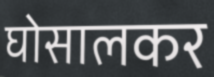
घोसालकर